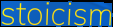
stoicism